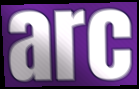
arc